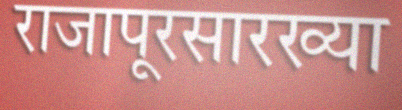
राजापूरसारख्या